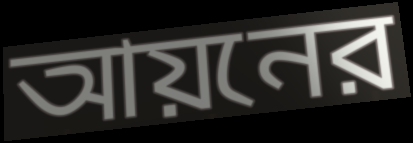
আয়নের